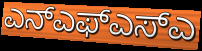
ಎನ್ಎಫ್ಎಸ್ಎ